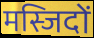
मस्‍जिदों